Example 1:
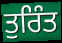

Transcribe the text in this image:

ਤੁਰਿੰਤ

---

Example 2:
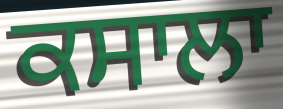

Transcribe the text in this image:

ਕਸਾਲਾ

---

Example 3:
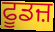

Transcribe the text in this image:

ਫੂਡਜ਼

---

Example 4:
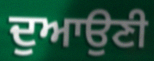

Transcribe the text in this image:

ਦੁਆਉਣੀ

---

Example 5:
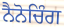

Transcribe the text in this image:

ਨੈਨੋਚਿੰਗ